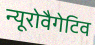
न्यूरोवैगेटिव